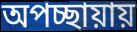
অপচ্ছায়ায়